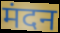
मंदन